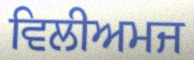
ਵਿਲੀਅਮਜ